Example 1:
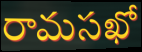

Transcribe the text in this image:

రామసఖో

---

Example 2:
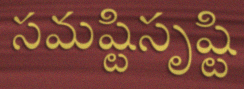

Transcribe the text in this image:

సమష్టిసృష్టి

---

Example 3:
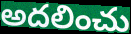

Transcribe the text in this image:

అదలించు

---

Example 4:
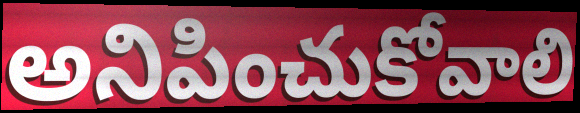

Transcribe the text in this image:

అనిపించుకోవాలి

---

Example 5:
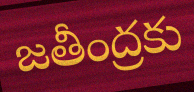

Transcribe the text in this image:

జతీంద్రకు